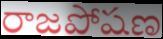
రాజపోషణ